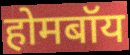
होमबॉय